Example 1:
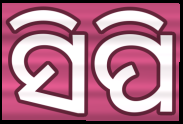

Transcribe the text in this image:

ସିପି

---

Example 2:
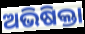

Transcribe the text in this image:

ଅଭିଷିକ୍ତା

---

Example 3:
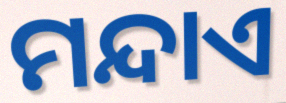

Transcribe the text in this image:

ମନ୍ଦାଏ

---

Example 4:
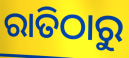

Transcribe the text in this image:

ରାତିଠାରୁ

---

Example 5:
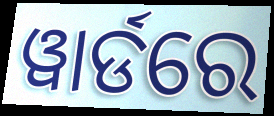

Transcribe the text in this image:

ୱାର୍ଡରେ